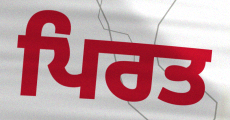
ਪਿਰਤ